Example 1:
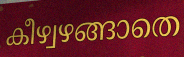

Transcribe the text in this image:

കീഴ്വഴങ്ങാതെ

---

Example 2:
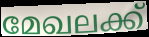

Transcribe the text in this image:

മേഖലക്ക്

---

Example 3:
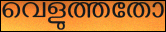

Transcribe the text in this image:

വെളുത്തതോ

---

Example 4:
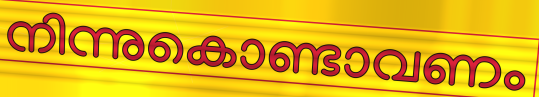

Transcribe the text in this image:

നിന്നുകൊണ്ടാവണം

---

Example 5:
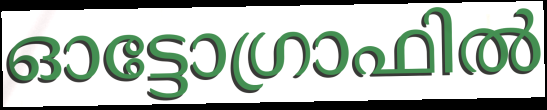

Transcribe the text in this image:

ഓട്ടോഗ്രാഫിൽ